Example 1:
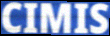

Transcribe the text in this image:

CIMIS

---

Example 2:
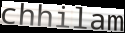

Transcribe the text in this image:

chhilam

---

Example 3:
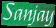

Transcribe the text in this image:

Sanjay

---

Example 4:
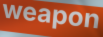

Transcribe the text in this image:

weapon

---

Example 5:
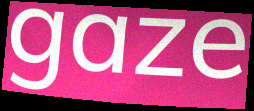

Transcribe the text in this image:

gaze